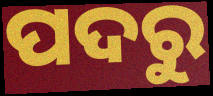
ପଦରୁ